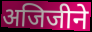
अजिजीने